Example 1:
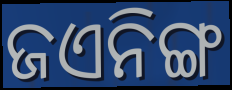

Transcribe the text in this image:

ଜଏନିଙ୍ଗ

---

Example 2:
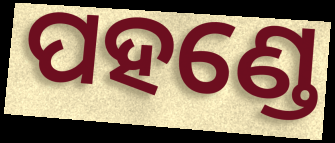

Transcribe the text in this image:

ପହଣ୍ଡେ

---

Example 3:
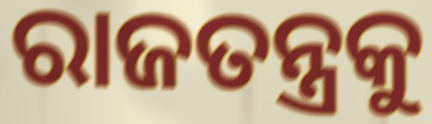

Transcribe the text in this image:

ରାଜତନ୍ତ୍ରକୁ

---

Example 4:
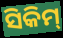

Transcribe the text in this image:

ସିକିମ୍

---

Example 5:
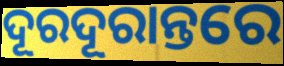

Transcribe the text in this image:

ଦୂରଦୂରାନ୍ତରେ